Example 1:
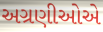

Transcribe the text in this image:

અગ્રણીઓએ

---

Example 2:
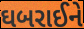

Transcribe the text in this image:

ઘબરાઈને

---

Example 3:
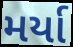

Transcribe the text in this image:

મર્યા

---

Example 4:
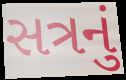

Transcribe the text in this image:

સત્રનું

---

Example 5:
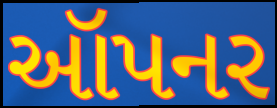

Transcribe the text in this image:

ઑપનર